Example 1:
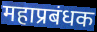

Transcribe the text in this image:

महाप्रबंधक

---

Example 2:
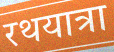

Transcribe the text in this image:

रथयात्रा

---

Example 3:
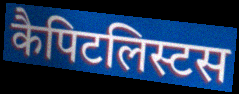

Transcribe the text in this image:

कैपिटलिस्टस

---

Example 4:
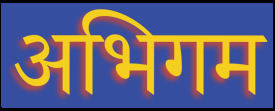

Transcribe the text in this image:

अभिगम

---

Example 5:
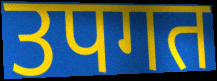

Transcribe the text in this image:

उपगत